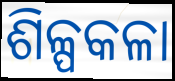
ଶିଳ୍ପକଳା